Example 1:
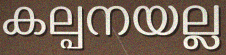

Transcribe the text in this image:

കല്പനയല്ല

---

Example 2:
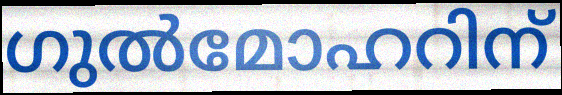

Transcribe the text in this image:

ഗുൽമോഹറിന്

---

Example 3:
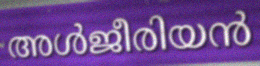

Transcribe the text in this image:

അൾജീരിയൻ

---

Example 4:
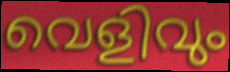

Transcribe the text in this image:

വെളിവും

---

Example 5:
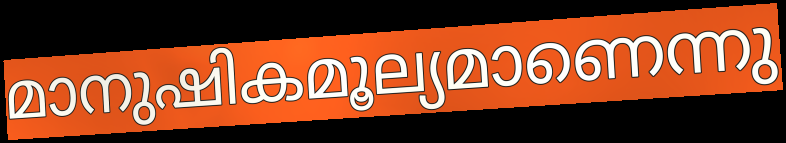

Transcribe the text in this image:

മാനുഷികമൂല്യമാണെന്നു